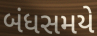
બંધસમયે